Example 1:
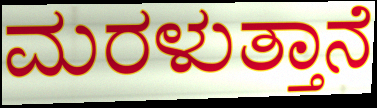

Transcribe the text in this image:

ಮರಳುತ್ತಾನೆ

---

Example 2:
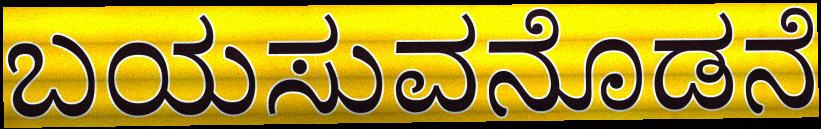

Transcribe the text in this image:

ಬಯಸುವನೊಡನೆ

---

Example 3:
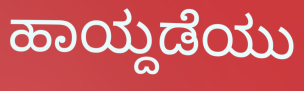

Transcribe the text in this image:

ಹಾಯ್ದಡೆಯು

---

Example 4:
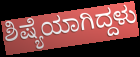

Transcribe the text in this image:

ಶಿಷ್ಯೆಯಾಗಿದ್ದಳು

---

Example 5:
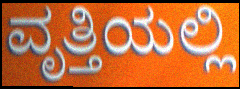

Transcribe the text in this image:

ವೃತ್ತಿಯಲ್ಲಿ